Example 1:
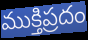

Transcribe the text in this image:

ముక్తిప్రదం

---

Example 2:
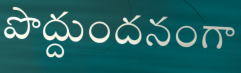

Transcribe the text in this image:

పొద్దుందనంగా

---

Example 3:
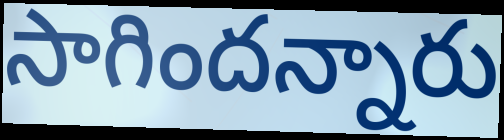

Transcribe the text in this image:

సాగిందన్నారు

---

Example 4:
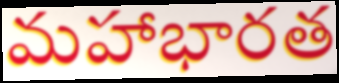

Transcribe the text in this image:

మహాభారత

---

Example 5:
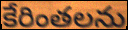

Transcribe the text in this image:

కేరింతలను